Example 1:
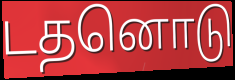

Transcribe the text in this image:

டதனொடு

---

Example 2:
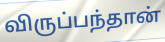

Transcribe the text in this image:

விருப்பந்தான்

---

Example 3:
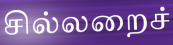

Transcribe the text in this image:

சில்லறைச்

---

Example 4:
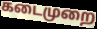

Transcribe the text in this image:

கடைமுறை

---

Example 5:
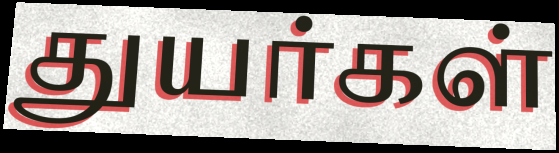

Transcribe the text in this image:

துயர்கள்